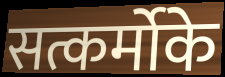
सत्कर्मोके